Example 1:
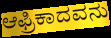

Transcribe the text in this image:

ಆಫ್ರಿಕಾದವನು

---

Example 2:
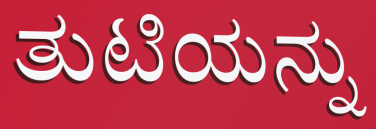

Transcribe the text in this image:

ತುಟಿಯನ್ನು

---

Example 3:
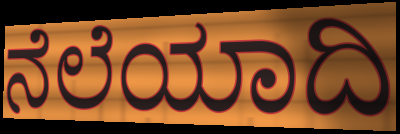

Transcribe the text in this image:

ನೆಲೆಯಾದಿ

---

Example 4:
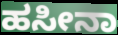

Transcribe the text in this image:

ಹಸೀನಾ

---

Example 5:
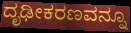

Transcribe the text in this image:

ದೃಢೀಕರಣವನ್ನೂ